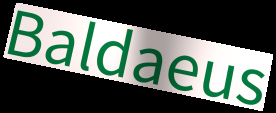
Baldaeus